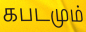
கபடமும்